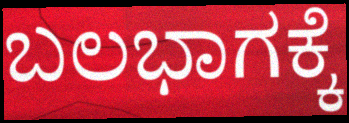
ಬಲಭಾಗಕ್ಕೆ